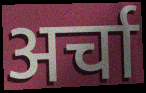
अर्चा